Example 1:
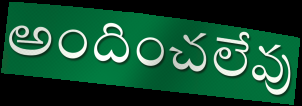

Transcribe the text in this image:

అందించలేవు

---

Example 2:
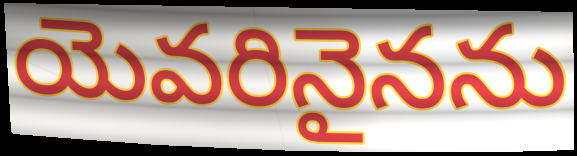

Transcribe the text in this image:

యెవరినైనను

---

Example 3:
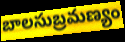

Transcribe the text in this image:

బాలసుబ్రమణ్యం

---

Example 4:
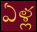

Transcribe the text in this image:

ఏళ్ల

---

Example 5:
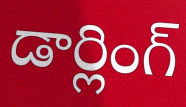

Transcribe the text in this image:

డార్లింగ్